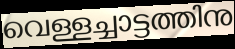
വെള്ളച്ചാട്ടത്തിനു